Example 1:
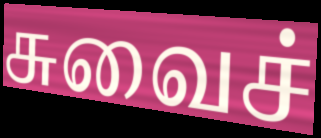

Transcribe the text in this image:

சுவைச்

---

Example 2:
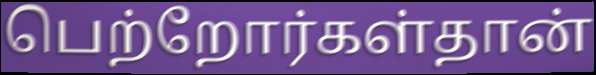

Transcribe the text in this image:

பெற்றோர்கள்தான்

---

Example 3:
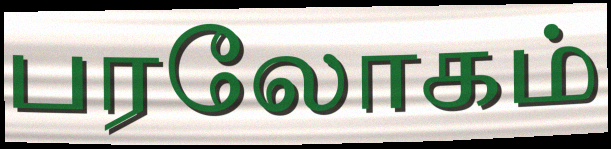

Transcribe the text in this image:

பரலோகம்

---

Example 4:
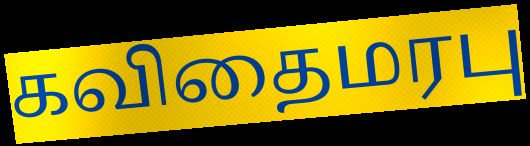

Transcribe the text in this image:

கவிதைமரபு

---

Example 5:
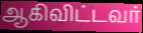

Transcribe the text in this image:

ஆகிவிட்டவர்